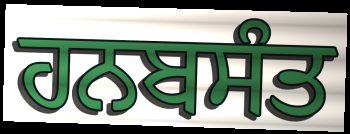
ਹਨਬਸੰਤ